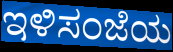
ಇಳಿಸಂಜೆಯ